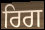
ਰਿਗ